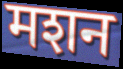
मशन